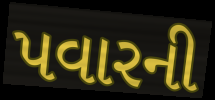
પવારની